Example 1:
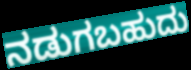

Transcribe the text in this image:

ನಡುಗಬಹುದು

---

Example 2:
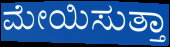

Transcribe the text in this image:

ಮೇಯಿಸುತ್ತಾ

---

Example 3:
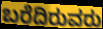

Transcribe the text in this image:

ಬರೆದಿರುವರು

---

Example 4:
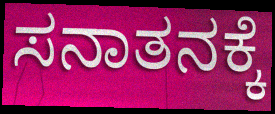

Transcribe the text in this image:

ಸನಾತನಕ್ಕೆ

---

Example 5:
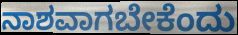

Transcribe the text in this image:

ನಾಶವಾಗಬೇಕೆಂದು